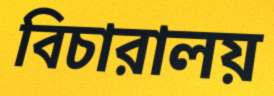
বিচারালয়